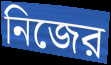
নিজের